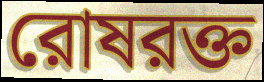
রোষরক্ত